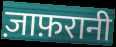
ज़ाफ़रानी